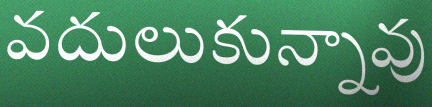
వదులుకున్నావు